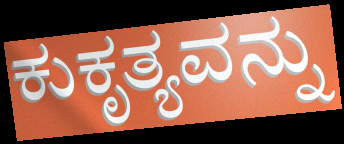
ಕುಕೃತ್ಯವನ್ನು